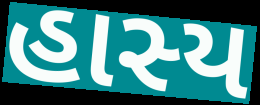
હાસ્ય